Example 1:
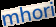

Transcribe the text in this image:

mhori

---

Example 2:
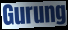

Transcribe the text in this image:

Gurung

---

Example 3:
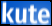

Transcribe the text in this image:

kute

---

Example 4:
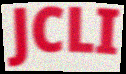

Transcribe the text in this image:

JCLI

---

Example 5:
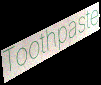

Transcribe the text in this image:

Toothpaste